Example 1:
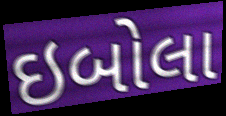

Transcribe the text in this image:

ઇબોલા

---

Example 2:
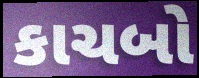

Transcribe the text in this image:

કાચબો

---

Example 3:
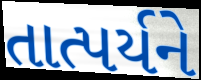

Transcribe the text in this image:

તાત્પર્યને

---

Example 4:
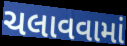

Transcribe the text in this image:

ચલાવવામાં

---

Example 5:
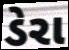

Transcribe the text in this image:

ડેરા